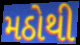
મઠોથી